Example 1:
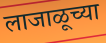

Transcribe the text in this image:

लाजाळूच्या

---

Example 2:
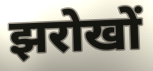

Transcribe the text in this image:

झरोखों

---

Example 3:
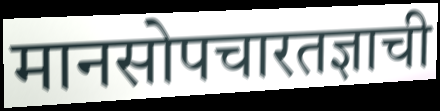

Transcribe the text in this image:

मानसोपचारतज्ञाची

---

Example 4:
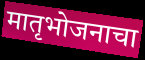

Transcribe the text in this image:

मातृभोजनाचा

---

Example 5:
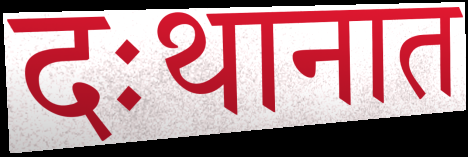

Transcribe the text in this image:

दःथानात